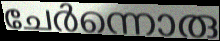
ചേർന്നൊരു